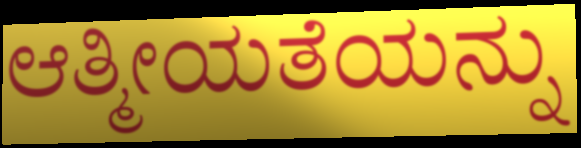
ಆತ್ಮೀಯತೆಯನ್ನು